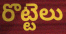
రొట్టెలు